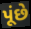
પૂંછે